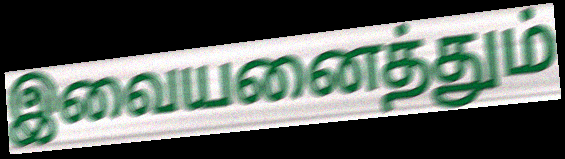
இவையனைத்தும்